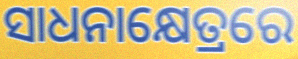
ସାଧନାକ୍ଷେତ୍ରରେ